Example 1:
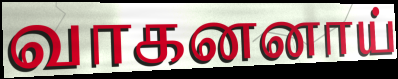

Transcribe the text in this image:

வாகனனாய்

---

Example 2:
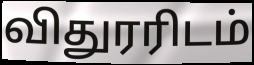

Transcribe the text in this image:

விதுரரிடம்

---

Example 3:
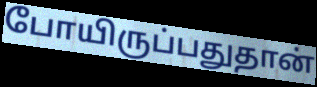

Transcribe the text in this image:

போயிருப்பதுதான்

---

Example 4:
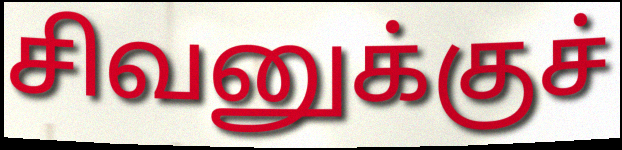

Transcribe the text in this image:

சிவனுக்குச்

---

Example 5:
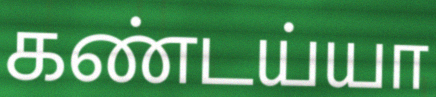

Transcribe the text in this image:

கண்டய்யா